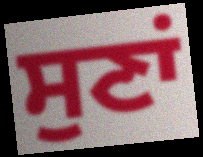
ਸੁਣਾਂ